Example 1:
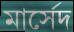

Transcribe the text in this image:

মার্সেদ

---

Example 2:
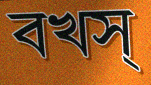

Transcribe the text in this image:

বখস্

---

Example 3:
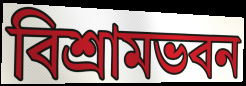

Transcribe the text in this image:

বিশ্রামভবন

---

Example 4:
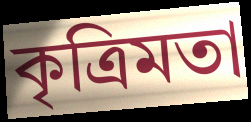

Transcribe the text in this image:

কৃত্রিমতা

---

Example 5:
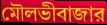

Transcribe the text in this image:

মৌলভীবাজার